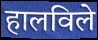
हालविले